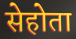
सेहोता